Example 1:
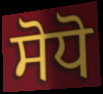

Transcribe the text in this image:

ਸੋਧੋ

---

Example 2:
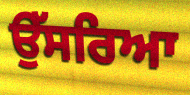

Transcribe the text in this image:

ਉੱਸਰਿਆ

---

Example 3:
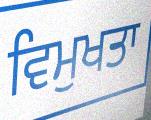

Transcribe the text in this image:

ਵਿਮੁਖਤਾ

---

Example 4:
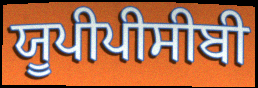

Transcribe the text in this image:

ਯੂਪੀਪੀਸੀਬੀ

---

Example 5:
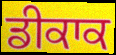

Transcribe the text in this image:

ਡੀਕਾਕ